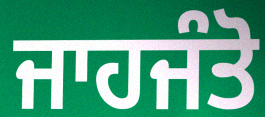
ਜਾਹਜੰਤੋ